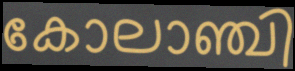
കോലാഞ്ചി